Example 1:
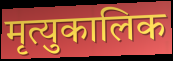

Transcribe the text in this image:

मृत्युकालिक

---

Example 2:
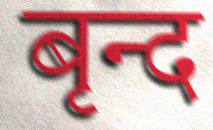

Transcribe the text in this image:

बृन्द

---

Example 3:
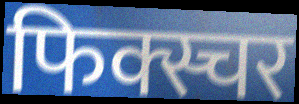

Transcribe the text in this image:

फिक्स्चर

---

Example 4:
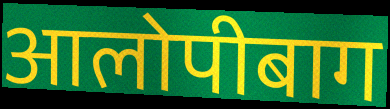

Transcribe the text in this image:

आलोपीबाग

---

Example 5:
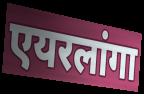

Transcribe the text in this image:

एयरलांगा